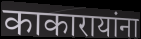
काकारायांना